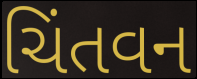
ચિંતવન